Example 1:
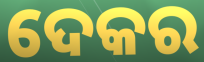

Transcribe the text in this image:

ଦେକର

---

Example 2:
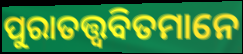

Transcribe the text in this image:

ପୁରାତତ୍ତ୍ୱବିତମାନେ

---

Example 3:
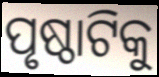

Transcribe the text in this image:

ପୃଷ୍ଠାଟିକୁ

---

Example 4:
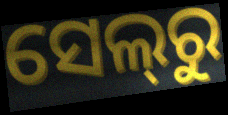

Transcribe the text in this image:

ସେଲ୍‌ରୁ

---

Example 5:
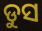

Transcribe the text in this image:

ଡୁସ